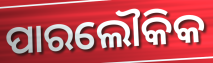
ପାରଲୌକିକ